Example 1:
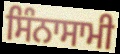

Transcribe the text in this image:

ਸਿੰਨਾਸਾਮੀ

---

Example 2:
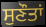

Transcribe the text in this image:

ਸੁਣੌਤਾਂ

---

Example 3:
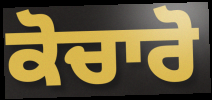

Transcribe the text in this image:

ਕੋਚਾਰੋ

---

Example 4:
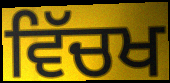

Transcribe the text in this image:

ਵਿੱਚਖ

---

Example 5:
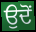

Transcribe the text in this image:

ਉਦੋੰ